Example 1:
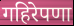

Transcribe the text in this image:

गहिरेपणा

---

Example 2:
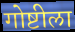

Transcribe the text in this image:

गोष्टीला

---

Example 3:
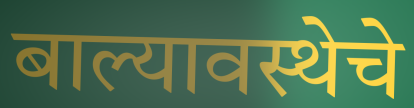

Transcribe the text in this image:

बाल्यावस्थेचे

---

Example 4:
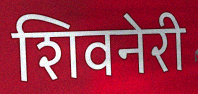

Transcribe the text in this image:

शिवनेरी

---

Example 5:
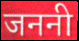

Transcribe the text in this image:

जननी